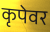
कृपेवर